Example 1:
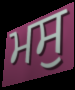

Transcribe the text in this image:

ਮਸੁ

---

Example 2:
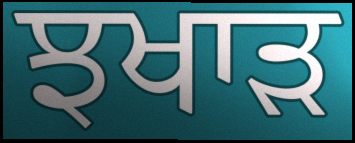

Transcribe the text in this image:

ਝਖਾੜ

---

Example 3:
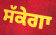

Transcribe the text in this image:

ਸੱਕੇਗਾ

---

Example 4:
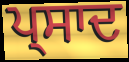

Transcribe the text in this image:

ਪ੍ਸਾਦ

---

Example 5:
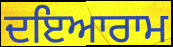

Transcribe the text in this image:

ਦਇਆਰਾਮ